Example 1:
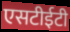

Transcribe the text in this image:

एसटीईटी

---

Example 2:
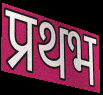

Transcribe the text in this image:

प्रथभ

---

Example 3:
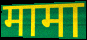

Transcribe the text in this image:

मामा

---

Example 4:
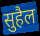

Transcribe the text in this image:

सुहैल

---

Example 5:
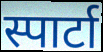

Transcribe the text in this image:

स्पार्टा